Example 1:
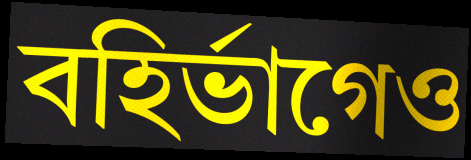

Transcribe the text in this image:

বহির্ভাগেও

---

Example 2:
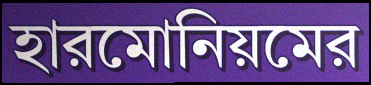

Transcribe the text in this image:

হারমোনিয়মের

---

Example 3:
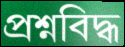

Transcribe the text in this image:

প্রশ্নবিদ্ধ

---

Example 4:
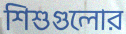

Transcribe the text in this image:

শিশুগুলোর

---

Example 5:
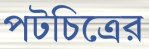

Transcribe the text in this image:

পটচিত্রের